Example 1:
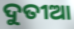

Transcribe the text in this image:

ଦୁତୀଆ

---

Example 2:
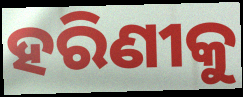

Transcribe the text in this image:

ହରିଣୀକୁ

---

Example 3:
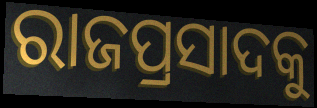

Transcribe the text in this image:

ରାଜପ୍ରସାଦକୁ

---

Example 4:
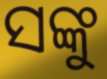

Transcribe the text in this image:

ସଙ୍କୁ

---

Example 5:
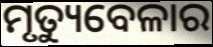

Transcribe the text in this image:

ମୃତ୍ୟୁବେଳାର